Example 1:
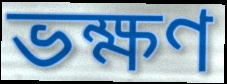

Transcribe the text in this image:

ভক্ষণ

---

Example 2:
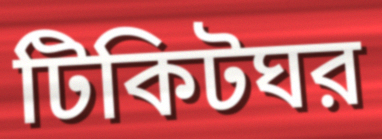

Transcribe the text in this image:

টিকিটঘর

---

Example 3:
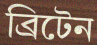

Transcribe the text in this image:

ব্রিটেন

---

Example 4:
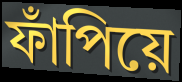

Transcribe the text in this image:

ফাঁপিয়ে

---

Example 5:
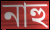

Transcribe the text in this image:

নাহু